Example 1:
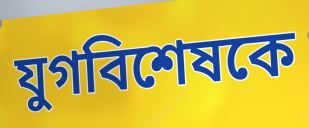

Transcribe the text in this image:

যুগবিশেষকে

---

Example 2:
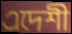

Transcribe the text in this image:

এদেশী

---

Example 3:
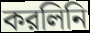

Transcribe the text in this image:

করলিনি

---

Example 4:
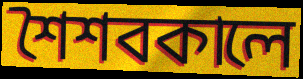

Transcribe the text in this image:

শৈশবকালে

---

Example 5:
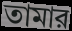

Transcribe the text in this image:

তামার